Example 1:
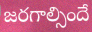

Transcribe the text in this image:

జరగాల్సిందే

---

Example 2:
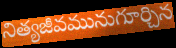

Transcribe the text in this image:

నిత్యజీవమునుగూర్చిన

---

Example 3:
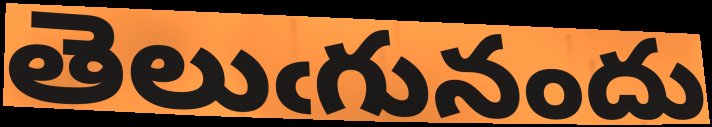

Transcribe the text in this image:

తెలుఁగునందు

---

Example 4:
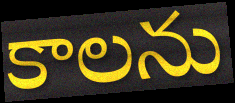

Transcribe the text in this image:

కాలను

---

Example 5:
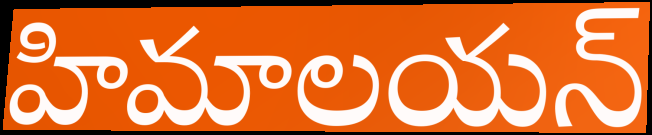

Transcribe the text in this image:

హిమాలయన్